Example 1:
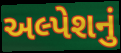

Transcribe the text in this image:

અલ્પેશનું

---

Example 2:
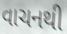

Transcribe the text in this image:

વાચનથી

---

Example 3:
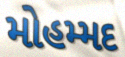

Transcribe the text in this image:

મોહમ્મદ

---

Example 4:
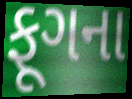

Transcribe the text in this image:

ફૂગના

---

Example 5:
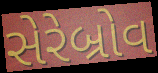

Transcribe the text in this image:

સેરેબ્રોવ